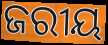
ଜରୀୟ